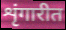
शृंगारीत